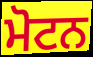
ਮੋਟਨ